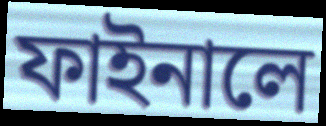
ফাইনালে